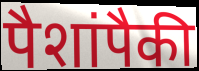
पैशांपैकी